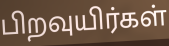
பிறவுயிர்கள்